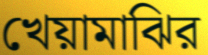
খেয়ামাঝির